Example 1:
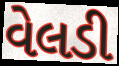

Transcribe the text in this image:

વેલડી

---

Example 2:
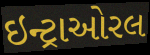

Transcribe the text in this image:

ઇન્ટ્રાઓરલ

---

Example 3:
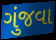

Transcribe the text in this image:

ગુંજવા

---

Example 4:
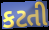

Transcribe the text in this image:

કટતી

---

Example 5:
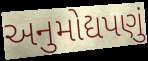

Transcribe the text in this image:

અનુમોદ્યપણું